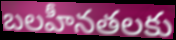
బలహీనతలకు